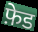
फ़ेड